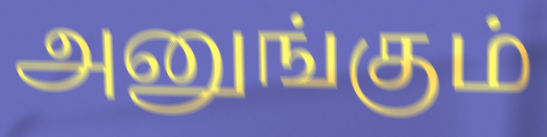
அனுங்கும்